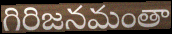
గిరిజనమంతా